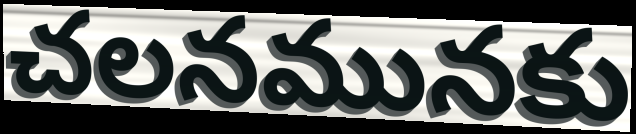
చలనమునకు